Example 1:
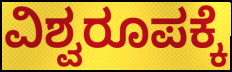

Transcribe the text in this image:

ವಿಶ್ವರೂಪಕ್ಕೆ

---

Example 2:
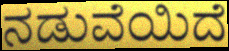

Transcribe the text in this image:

ನಡುವೆಯಿದೆ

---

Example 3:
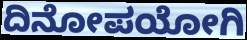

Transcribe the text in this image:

ದಿನೋಪಯೋಗಿ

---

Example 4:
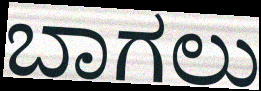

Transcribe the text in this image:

ಬಾಗಲು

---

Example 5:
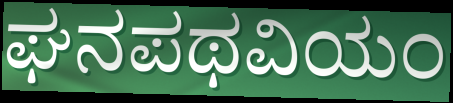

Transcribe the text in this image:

ಘನಪಥವಿಯಂ